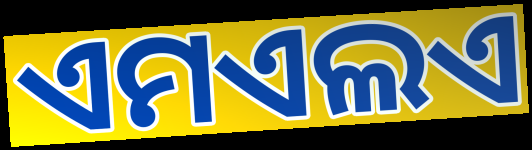
ଏମଏଲଏ